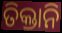
ତିକ୍ତାନି